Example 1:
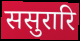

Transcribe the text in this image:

ससुरारि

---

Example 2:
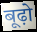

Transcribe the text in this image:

बूढ़ो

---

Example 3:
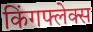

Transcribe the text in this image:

किंगफ्लेक्स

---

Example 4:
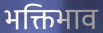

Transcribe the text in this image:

भक्तिभाव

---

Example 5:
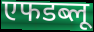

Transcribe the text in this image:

एफडब्लू